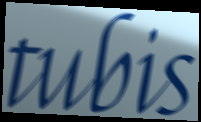
tubis